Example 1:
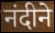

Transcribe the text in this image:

नंदीने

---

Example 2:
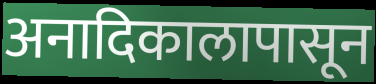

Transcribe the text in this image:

अनादिकालापासून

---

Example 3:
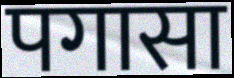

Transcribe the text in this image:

पगासा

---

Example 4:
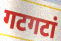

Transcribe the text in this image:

गटगटां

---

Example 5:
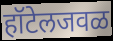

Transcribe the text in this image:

हॉटेलजवळ